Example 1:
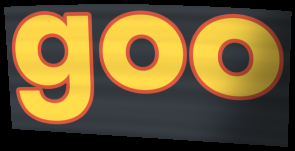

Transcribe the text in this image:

goo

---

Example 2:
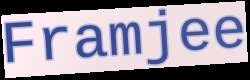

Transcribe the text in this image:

Framjee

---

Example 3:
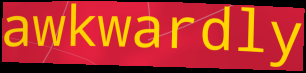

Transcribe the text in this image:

awkwardly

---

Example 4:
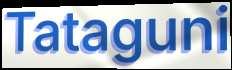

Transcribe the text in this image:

Tataguni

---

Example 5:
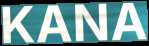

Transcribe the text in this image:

KANA